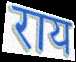
राय